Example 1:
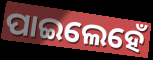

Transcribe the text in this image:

ପାଇଲେହେଁ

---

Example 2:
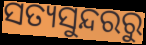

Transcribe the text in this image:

ସତ୍ୟସୁନ୍ଦରରୁ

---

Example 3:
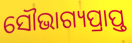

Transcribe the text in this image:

ସୌଭାଗ୍ୟପ୍ରାପ୍ତ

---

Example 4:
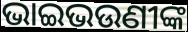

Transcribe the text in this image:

ଭାଇଭଉଣୀଙ୍କ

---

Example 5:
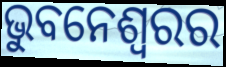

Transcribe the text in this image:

ଭୁବନେଶ୍ୱରର